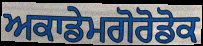
ਅਕਾਡੇਮਗੋਰੋਡੋਕ